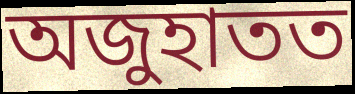
অজুহাতত